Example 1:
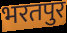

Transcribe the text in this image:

भरतपुर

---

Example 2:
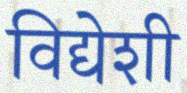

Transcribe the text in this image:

विद्येशी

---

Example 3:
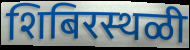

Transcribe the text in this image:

शिबिरस्थळी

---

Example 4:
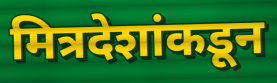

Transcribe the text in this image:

मित्रदेशांकडून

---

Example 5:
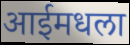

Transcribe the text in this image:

आईमधला